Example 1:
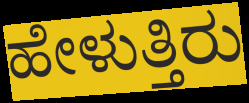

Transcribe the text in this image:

ಹೇಳುತ್ತಿರು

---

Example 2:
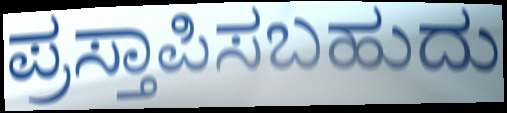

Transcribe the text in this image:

ಪ್ರಸ್ತಾಪಿಸಬಹುದು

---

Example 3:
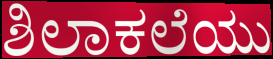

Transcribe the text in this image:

ಶಿಲಾಕಲೆಯು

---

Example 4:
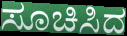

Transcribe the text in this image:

ಸೂಚಿಸಿದ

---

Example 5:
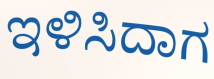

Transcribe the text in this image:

ಇಳಿಸಿದಾಗ